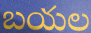
బయల